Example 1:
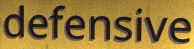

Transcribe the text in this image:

defensive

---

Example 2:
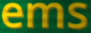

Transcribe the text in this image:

ems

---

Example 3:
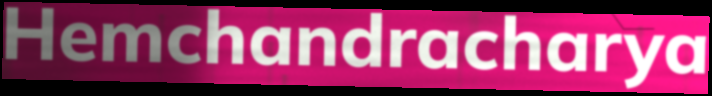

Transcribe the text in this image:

Hemchandracharya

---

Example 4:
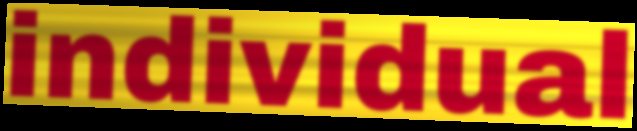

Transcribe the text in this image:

individual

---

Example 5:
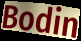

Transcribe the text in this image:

Bodin